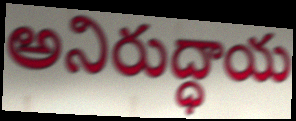
అనిరుద్ధాయ